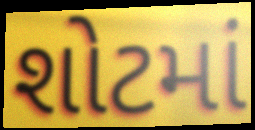
શોટમાં